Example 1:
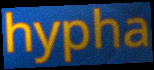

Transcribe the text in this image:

hypha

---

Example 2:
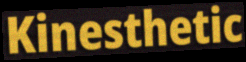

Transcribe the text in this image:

Kinesthetic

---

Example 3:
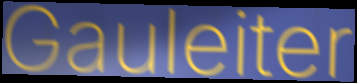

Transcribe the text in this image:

Gauleiter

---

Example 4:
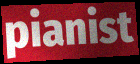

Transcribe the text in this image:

pianist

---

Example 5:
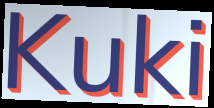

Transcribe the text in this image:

Kuki